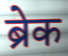
ब्रेक